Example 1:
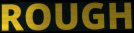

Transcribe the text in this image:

ROUGH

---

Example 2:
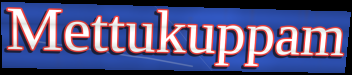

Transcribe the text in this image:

Mettukuppam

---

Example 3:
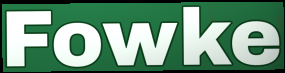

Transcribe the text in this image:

Fowke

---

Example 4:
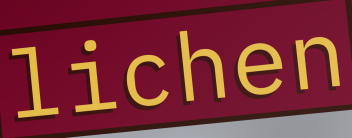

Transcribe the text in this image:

lichen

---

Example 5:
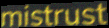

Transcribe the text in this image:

mistrust